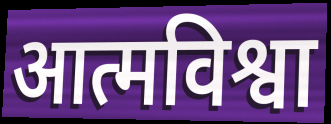
आत्मविश्वा